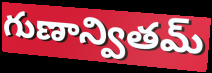
గుణాన్వితమ్